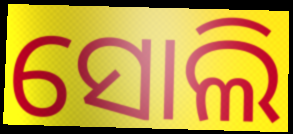
ସୋଲି